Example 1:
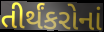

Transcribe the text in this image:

તીર્થંકરોનાં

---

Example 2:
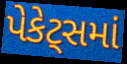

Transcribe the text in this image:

પેકેટ્સમાં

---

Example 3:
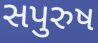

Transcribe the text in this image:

સપુરુષ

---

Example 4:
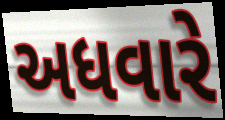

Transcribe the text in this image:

અધવારે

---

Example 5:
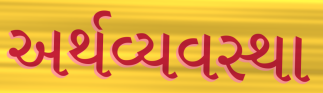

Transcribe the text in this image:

અર્થવ્યવસ્થા